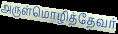
அருள்மொழித்தேவர்